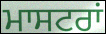
ਮਾਸਟਰਾਂ